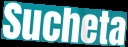
Sucheta